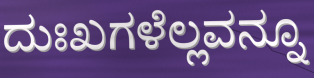
ದುಃಖಗಳೆಲ್ಲವನ್ನೂ